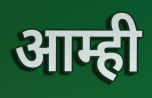
आम्ही